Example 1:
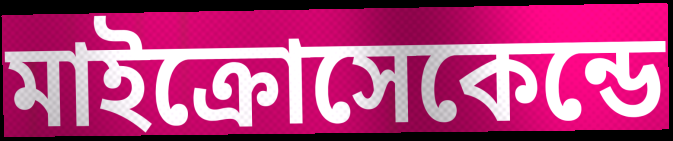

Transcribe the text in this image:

মাইক্রোসেকেন্ডে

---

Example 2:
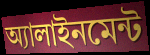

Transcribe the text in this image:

অ্যালাইনমেন্ট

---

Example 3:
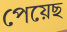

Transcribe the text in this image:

পেয়েছ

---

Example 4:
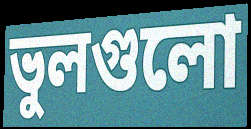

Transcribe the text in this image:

ভুলগুলো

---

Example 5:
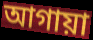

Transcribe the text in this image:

আগায়া